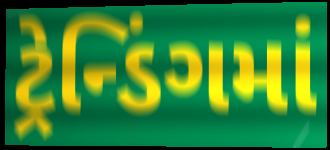
ટ્રેન્ડિંગમાં